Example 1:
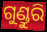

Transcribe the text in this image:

ଗୁଣ୍ଡୁରି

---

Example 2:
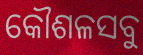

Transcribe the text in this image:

କୌଶଳସବୁ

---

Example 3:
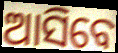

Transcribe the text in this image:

ଆସିବେ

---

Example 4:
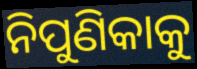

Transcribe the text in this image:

ନିପୁଣିକାକୁ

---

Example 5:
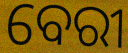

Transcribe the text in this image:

ବେରୀ